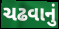
ચઢવાનું